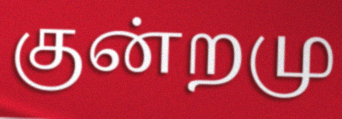
குன்றமு